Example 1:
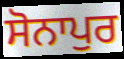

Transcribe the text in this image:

ਸੋਨਾਪੁਰ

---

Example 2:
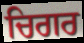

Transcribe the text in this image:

ਚਿਗਰ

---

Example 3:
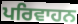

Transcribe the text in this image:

ਪਰਿਵਾਹਨ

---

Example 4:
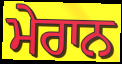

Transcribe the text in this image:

ਮੇਰਾਨ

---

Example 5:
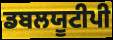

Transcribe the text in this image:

ਡਬਲਯੂਟੀਪੀ